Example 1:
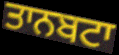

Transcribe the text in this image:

ਤਾਨਬਟਾ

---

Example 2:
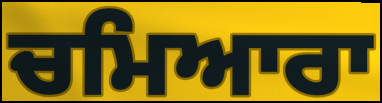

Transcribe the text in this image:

ਚਮਿਆਰਾ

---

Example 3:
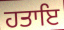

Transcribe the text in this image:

ਹਤਾਇ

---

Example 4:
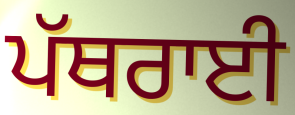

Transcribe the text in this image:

ਪੱਥਰਾਈ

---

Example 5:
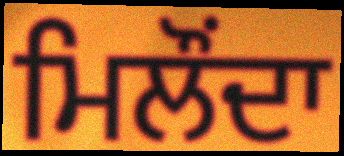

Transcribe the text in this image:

ਮਿਲੌਂਦਾ